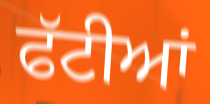
ਫੱਟੀਆਂ